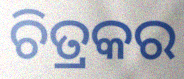
ଚିତ୍ରକର